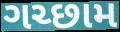
ગચ્છામ